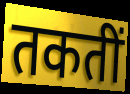
तकतीं